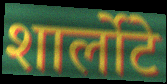
शार्लोटे